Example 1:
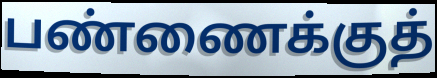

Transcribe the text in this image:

பண்ணைக்குத்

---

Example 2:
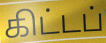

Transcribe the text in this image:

கிட்டப்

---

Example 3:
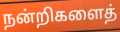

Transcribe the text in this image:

நன்றிகளைத்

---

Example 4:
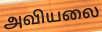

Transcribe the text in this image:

அவியலை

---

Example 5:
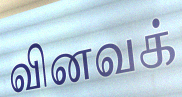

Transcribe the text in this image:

வினவக்